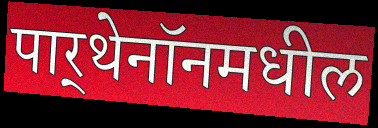
पार्थेनॉनमधील